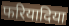
फरियादिया